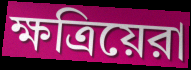
ক্ষত্রিয়েরা